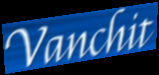
Vanchit